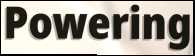
Powering